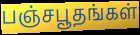
பஞ்சபூதங்கள்